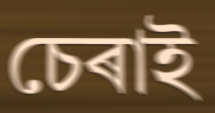
চেৰাই